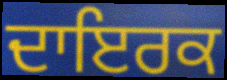
ਦਾਇਰਕ